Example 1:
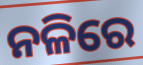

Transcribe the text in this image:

ନଳିରେ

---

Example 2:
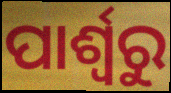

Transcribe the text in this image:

ପାର୍ଶ୍ଵରୁ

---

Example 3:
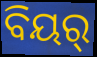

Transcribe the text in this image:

ବିୟର୍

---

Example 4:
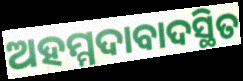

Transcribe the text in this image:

ଅହମ୍ମଦାବାଦସ୍ଥିତ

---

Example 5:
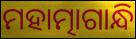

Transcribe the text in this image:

ମହାତ୍ମାଗାନ୍ଧି